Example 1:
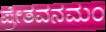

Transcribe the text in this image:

ಪ್ರೇತವನಮಂ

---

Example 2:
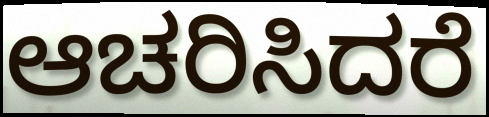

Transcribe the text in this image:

ಆಚರಿಸಿದರೆ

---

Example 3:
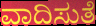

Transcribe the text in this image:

ವಾದಿಸುತೆ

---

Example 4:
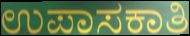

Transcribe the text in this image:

ಉಪಾಸಕಾತಿ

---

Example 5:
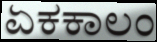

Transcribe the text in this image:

ಏಕಕಾಲಂ